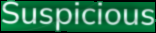
Suspicious